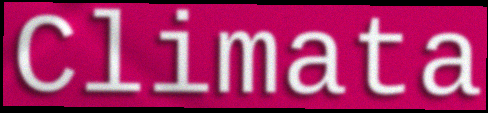
Climata